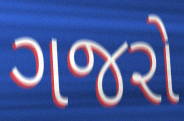
ગજરો